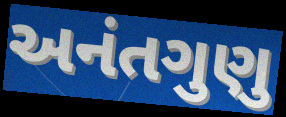
અનંતગુણુ